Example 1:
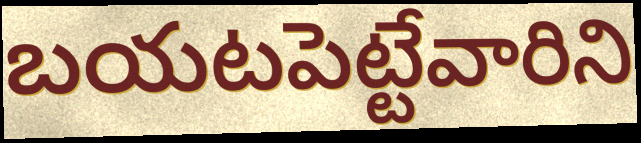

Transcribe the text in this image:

బయటపెట్టేవారిని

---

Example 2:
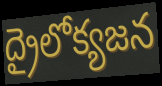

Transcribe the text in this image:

ద్రైలోక్యజన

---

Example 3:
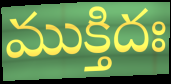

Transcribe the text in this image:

ముక్తిదః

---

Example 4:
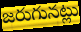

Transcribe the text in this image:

జరుగునట్లు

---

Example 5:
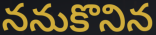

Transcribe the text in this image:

ననుకొనిన